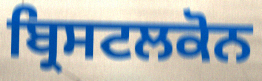
ਬ੍ਰਿਸਟਲਕੋਨ